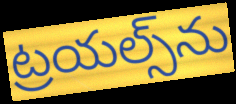
ట్రయల్స్‌ను